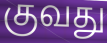
குவது